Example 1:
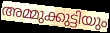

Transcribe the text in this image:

അമ്മുക്കുട്ടിയും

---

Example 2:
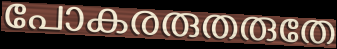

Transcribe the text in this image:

പോകരരുതരുതേ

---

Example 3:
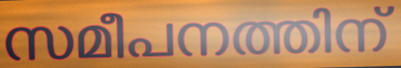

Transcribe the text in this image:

സമീപനത്തിന്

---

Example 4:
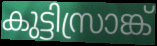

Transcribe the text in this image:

കുട്ടിസ്രാങ്ക്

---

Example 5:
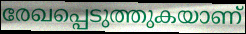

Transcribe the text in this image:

രേഖപ്പെടുത്തുകയാണ്